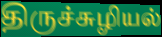
திருச்சுழியல்